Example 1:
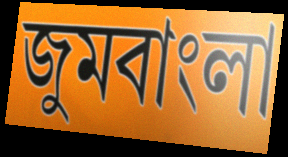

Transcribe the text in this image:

জুমবাংলা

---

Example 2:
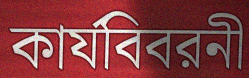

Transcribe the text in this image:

কার্যবিবরনী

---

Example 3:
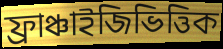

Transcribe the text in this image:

ফ্রাঞ্চাইজিভিত্তিক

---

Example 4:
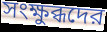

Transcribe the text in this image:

সংক্ষুব্ধদের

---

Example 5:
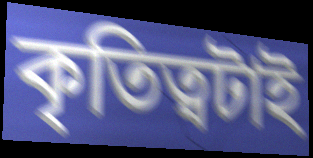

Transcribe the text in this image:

কৃতিত্বটাই